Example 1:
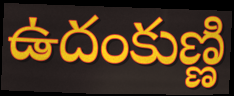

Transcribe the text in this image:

ఉదంకుణ్ణి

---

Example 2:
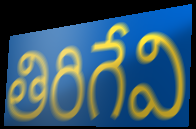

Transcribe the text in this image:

తిరిగేవి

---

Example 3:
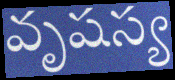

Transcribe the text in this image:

వృషస్య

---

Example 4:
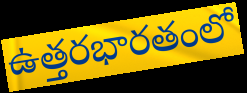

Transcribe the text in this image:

ఉత్తరభారతంలో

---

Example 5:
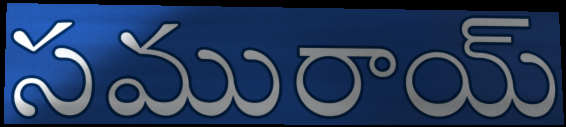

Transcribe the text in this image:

సమురాయ్